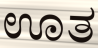
ಊತ